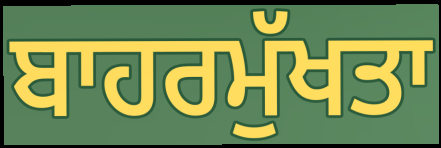
ਬਾਹਰਮੁੱਖਤਾ